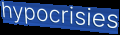
hypocrisies